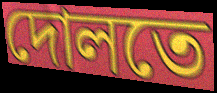
দোলতে